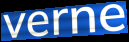
verne